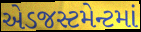
એડજસ્ટમેન્ટમાં